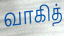
வாகித்